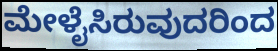
ಮೇಳೈಸಿರುವುದರಿಂದ